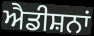
ਐਡੀਸ਼ਨਾਂ